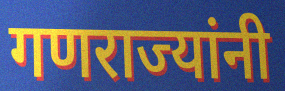
गणराज्यांनी